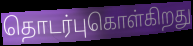
தொடர்புகொள்கிறது